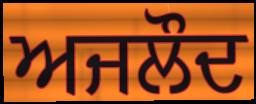
ਅਜਲੌਦ